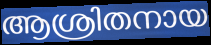
ആശ്രിതനായ